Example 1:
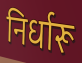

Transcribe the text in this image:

निर्धारू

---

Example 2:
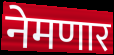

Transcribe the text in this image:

नेमणार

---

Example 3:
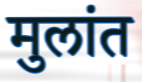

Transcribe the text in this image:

मुलांत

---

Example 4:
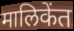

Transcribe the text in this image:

मालिकेंत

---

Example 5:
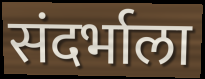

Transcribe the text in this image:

संदर्भाला